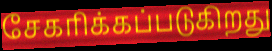
சேகரிக்கப்படுகிறது